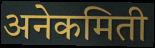
अनेकमिती